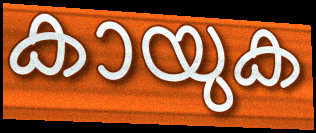
കായുക